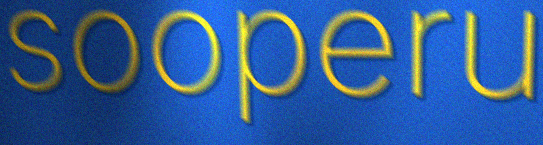
sooperu